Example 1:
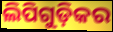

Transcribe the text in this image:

ଲିପିଗୁଡ଼ିକର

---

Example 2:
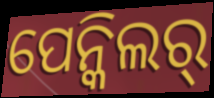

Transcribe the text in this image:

ପେନ୍କିଲର୍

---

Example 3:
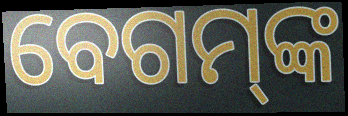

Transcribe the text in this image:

ବେଗମ୍‌ଙ୍କ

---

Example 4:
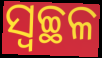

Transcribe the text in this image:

ସ୍ବଚ୍ଛଳ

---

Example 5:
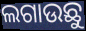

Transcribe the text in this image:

ଲଗାଉଛୁ